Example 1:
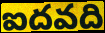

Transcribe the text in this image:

ఐదవది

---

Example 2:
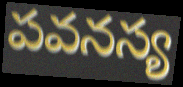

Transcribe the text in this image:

పవనస్య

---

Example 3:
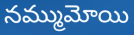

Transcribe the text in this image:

నమ్ముమోయి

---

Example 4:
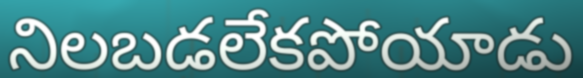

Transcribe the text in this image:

నిలబడలేకపోయాడు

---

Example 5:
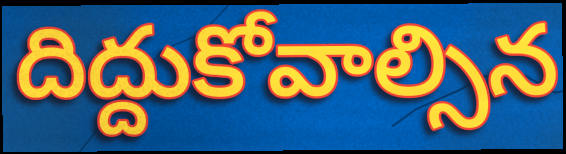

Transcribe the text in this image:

దిద్దుకోవాల్సిన